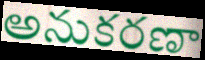
అనుకరణా